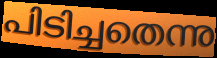
പിടിച്ചതെന്നു